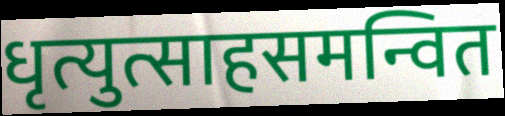
धृत्युत्साहसमन्वित